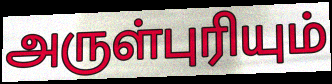
அருள்புரியும்